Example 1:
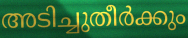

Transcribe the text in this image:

അടിച്ചുതീർക്കും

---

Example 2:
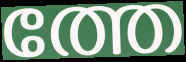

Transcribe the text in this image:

ത്തേ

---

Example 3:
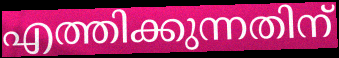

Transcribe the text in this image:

എത്തിക്കുന്നതിന്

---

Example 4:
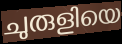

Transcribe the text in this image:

ചുരുളിയെ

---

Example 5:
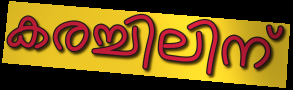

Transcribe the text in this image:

കരച്ചിലിന്